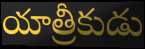
యాత్రీకుడు